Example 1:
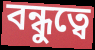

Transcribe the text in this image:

বন্ধুত্বে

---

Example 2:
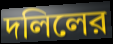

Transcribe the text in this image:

দলিলের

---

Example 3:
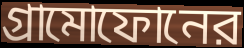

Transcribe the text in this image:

গ্রামোফোনের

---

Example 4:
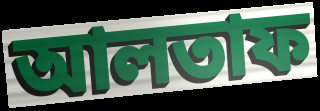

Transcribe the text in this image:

আলতাফ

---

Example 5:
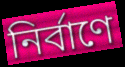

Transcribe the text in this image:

নির্বাণে